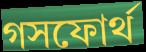
গসফোর্থ